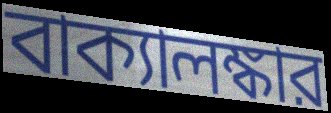
বাক্যালঙ্কার